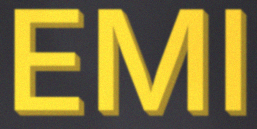
EMI